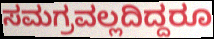
ಸಮಗ್ರವಲ್ಲದಿದ್ದರೂ